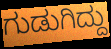
ಗುಡುಗಿದ್ದು